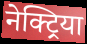
नेक्ट्रिया